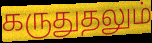
கருதுதலும்